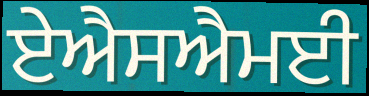
ਏਐਸਐਮਈ